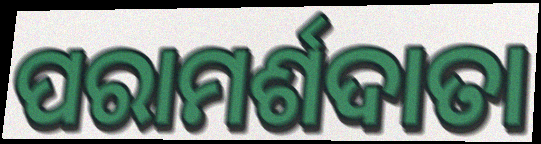
ପରାମର୍ଶଦାତା